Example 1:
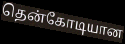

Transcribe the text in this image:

தென்கோடியான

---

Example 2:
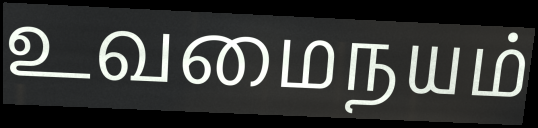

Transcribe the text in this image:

உவமைநயம்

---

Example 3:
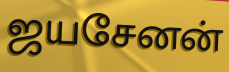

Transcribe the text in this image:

ஜயசேனன்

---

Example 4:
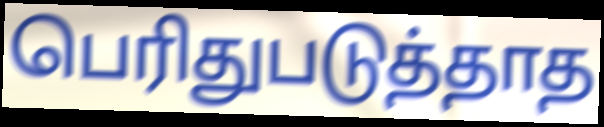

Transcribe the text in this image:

பெரிதுபடுத்தாத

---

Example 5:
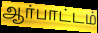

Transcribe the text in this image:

ஆர்பாட்டம்